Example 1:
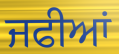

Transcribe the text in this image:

ਜਫੀਆਂ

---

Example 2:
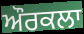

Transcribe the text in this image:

ਔਰਕਲਾ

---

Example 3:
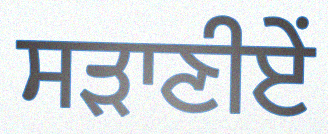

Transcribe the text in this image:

ਸੜਾਣੀਏਂ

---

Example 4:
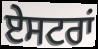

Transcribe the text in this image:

ਏਸਟਰਾਂ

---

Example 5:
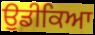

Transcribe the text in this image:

ਉਡੀਕਿਆ